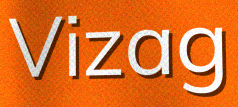
Vizag